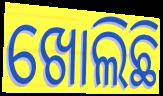
ଖୋଲିଛି